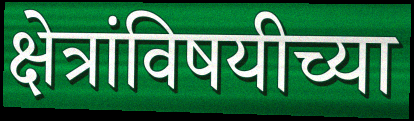
क्षेत्रांविषयीच्या